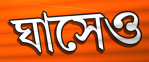
ঘাসেও